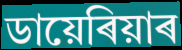
ডায়েৰিয়াৰ